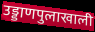
उड्डाणपुलाखाली